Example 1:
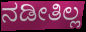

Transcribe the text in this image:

ನಡೀತಿಲ್ಲ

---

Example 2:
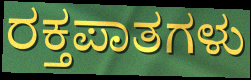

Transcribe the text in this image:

ರಕ್ತಪಾತಗಳು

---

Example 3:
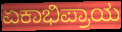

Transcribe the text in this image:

ಏಕಾಭಿಪ್ರಾಯ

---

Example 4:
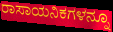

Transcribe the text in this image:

ರಾಸಾಯನಿಕಗಳನ್ನೂ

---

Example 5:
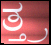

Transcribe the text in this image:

ತ್ತ್ರ